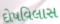
દોષવિલાસ